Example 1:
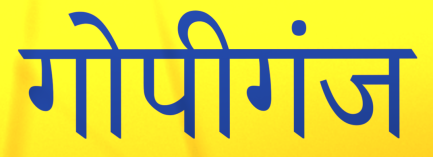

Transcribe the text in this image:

गोपीगंज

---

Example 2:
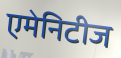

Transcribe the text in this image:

एमेनिटीज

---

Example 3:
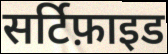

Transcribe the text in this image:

सर्टिफ़ाइड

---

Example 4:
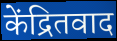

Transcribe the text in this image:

केंद्रितवाद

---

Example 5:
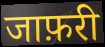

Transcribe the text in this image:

जाफ़री